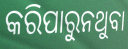
କରିପାରୁନଥୁବା